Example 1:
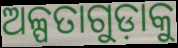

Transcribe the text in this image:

ଅଳ୍ପତାଗୁଡ଼ାକୁ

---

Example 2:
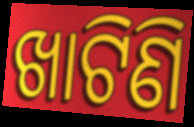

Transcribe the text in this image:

ଖାଟିଣି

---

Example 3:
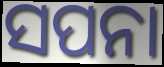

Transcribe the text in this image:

ସପନା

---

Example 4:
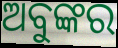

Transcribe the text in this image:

ଅବୁଙ୍କର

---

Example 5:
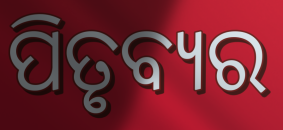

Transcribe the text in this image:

ପିତୃବ୍ୟର